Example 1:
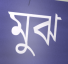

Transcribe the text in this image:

মুঝ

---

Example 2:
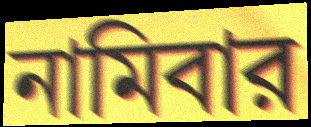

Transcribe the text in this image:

নামিবার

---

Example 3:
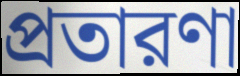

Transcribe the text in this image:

প্রতারণা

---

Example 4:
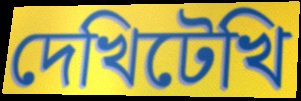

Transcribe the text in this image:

দেখিটেখি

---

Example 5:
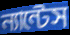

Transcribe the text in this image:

ন্যান্টেস